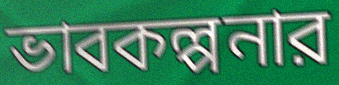
ভাবকল্পনার